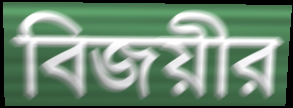
বিজয়ীর